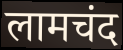
लामचंद